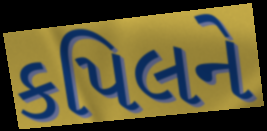
કપિલને